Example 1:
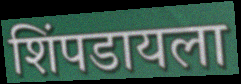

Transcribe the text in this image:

शिंपडायला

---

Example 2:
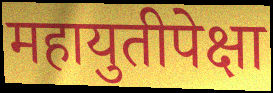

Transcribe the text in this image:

महायुतीपेक्षा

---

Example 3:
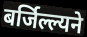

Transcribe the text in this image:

बर्जिल्ल्यने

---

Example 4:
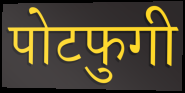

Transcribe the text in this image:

पोटफुगी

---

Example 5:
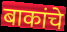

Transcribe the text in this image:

बाकांचे